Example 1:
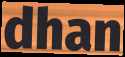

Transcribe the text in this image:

dhan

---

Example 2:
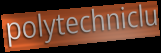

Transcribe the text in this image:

polytechniclu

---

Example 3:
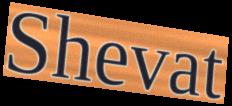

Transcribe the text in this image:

Shevat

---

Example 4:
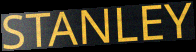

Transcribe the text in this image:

STANLEY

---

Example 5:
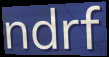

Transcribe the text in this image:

ndrf